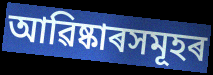
আৱিষ্কাৰসমূহৰ